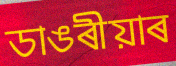
ডাঙৰীয়াৰ